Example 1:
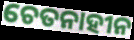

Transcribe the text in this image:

ଚେତନାହୀନ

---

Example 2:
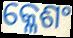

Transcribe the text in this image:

କ୍ଳେଶଂ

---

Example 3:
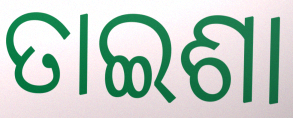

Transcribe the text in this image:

ତାଇଶା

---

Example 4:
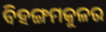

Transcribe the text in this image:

ବିହଙ୍ଗମକୁଳର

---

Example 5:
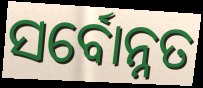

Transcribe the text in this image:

ସର୍ବୋନ୍ନତ